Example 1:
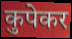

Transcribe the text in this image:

कुपेकर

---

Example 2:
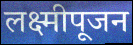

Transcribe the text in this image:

लक्ष्मीपूजन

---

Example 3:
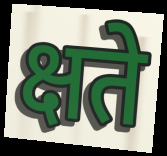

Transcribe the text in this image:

क्षते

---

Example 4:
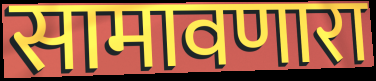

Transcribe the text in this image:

सामावणारा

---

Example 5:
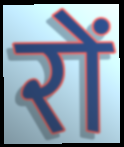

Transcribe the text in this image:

रों